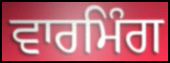
ਵਾਰਮਿੰਗ